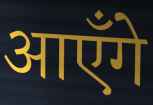
आएँगे